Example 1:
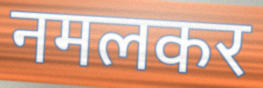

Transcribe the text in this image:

नमलकर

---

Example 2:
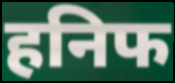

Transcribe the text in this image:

हनिफ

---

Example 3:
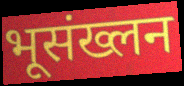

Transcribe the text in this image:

भूसंख्लन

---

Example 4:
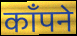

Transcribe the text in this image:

कॉँपने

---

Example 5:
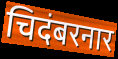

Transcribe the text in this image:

चिदंबरनार